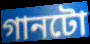
গানটো